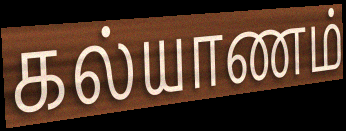
கல்யாணம்